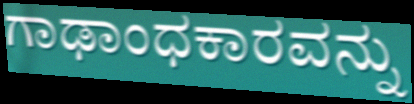
ಗಾಢಾಂಧಕಾರವನ್ನು